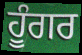
ਹੂੰਗਰ